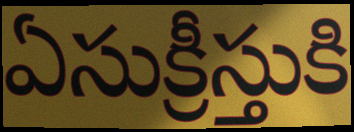
ఏసుక్రీస్తుకి